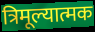
त्रिमूल्यात्मक